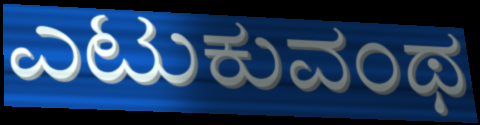
ಎಟುಕುವಂಥ